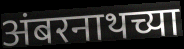
अंबरनाथच्या